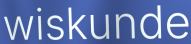
wiskunde